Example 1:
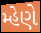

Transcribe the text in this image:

મ્હેણે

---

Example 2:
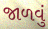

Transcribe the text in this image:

જાળવું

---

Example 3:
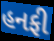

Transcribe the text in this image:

હનફી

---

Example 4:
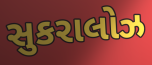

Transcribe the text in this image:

સુકરાલોઝ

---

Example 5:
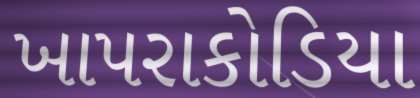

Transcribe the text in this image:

ખાપરાકોડિયા